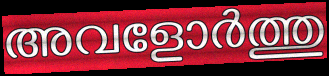
അവളോർത്തു